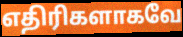
எதிரிகளாகவே